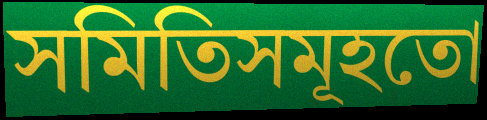
সমিতিসমূহতো